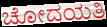
ಚೋದಯತಿ